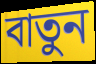
বাতুন